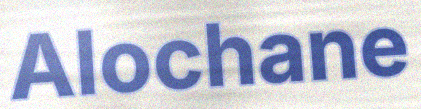
Alochane